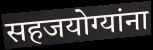
सहजयोग्यांना